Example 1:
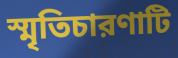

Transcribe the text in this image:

স্মৃতিচারণাটি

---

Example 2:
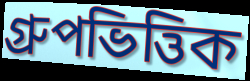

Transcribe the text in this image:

গ্রুপভিত্তিক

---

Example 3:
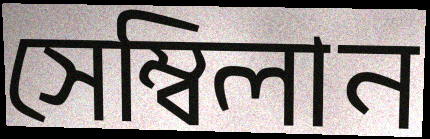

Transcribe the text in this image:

সেম্বিলান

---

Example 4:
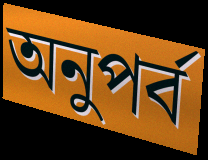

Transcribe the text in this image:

অনুপর্ব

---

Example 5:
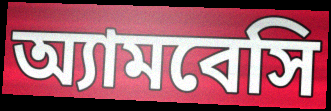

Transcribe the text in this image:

অ্যামবেসি